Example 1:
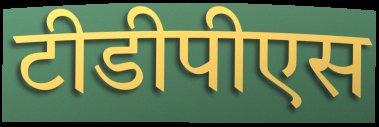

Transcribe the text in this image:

टीडीपीएस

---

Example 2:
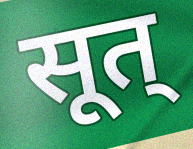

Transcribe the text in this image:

सूत्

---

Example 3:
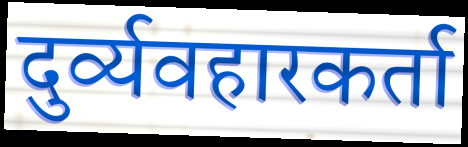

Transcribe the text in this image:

दुर्व्यवहारकर्ता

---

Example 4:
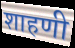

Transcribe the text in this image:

शाहणी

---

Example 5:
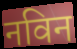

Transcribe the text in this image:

नविन